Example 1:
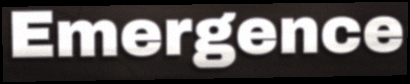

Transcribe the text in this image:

Emergence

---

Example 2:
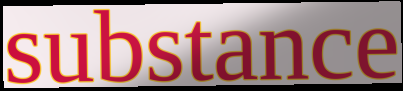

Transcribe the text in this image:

substance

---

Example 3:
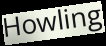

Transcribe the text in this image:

Howling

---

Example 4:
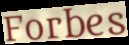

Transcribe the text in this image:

Forbes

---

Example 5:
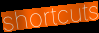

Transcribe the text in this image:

shortcuts